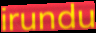
irundu